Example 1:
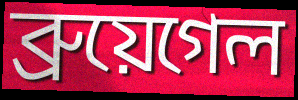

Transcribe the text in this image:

ব্রুয়েগেল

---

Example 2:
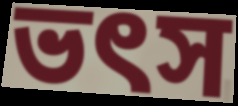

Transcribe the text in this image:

ভৎস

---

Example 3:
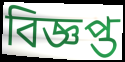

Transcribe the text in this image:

বিজ্ঞপ্ত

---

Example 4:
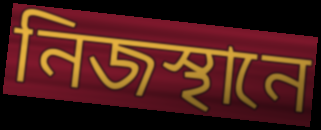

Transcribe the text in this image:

নিজস্থানে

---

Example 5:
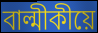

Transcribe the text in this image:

বাল্মীকীয়ে